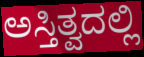
ಅಸ್ತಿತ್ವದಲ್ಲಿ